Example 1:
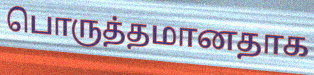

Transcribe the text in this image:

பொருத்தமானதாக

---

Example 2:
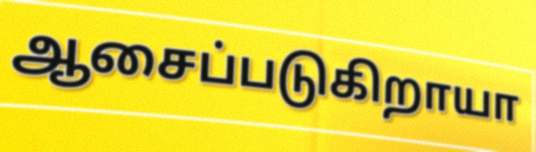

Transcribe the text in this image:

ஆசைப்படுகிறாயா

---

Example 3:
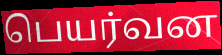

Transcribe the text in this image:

பெயர்வன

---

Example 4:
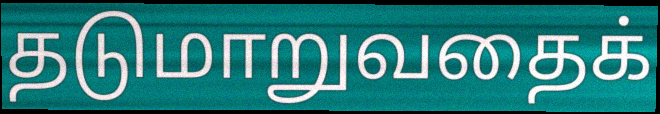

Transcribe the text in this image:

தடுமாறுவதைக்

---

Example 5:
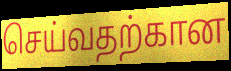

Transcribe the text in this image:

செய்வதற்கான